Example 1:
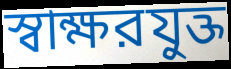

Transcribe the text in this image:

স্বাক্ষরযুক্ত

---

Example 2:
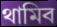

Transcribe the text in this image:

থামিব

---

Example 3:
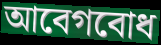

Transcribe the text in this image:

আবেগবোধ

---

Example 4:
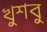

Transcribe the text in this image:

খুশবু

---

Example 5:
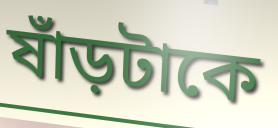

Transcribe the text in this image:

ষাঁড়টাকে